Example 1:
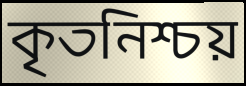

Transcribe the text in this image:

কৃতনিশ্চয়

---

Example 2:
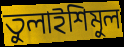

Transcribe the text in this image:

তুলাইশিমুল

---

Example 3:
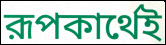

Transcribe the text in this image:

রূপকার্থেই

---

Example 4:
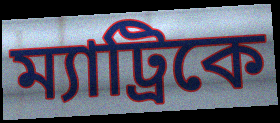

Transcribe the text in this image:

ম্যাট্রিকে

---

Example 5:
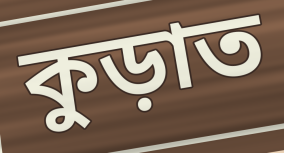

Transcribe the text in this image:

কুড়াত